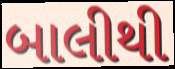
બાલીથી